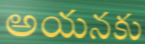
అయనకు